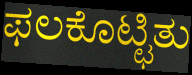
ಫಲಕೊಟ್ಟಿತು